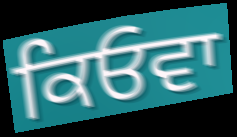
ਕਿਓਵਾ